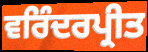
ਵਰਿੰਦਰਪ੍ਰੀਤ